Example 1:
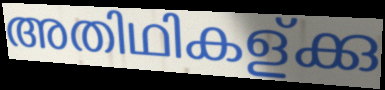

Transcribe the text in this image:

അതിഥികള്ക്കു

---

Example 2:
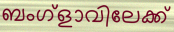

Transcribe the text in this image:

ബംഗ്ളാവിലേക്ക്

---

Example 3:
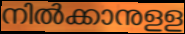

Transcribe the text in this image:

നിൽക്കാനുളള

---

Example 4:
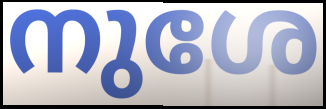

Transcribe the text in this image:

നുശേ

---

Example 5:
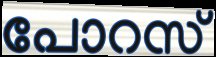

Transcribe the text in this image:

പോറസ്